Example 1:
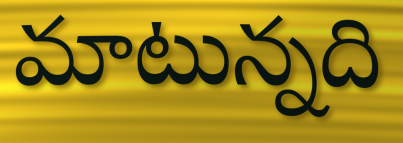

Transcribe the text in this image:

మాటున్నది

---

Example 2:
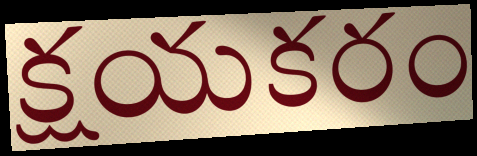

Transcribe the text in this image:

క్షయకరం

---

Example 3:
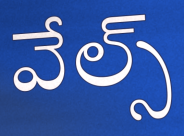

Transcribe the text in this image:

వేల్స్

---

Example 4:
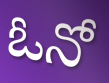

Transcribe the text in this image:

ఓనో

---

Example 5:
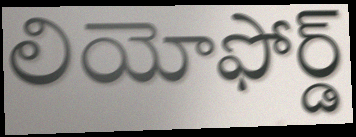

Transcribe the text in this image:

లియోఫోర్డ్